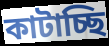
কাটাচ্ছি